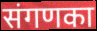
संगणका